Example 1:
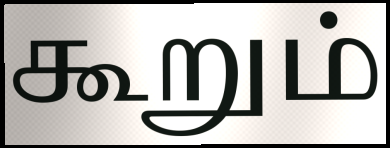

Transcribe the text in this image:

கூறும்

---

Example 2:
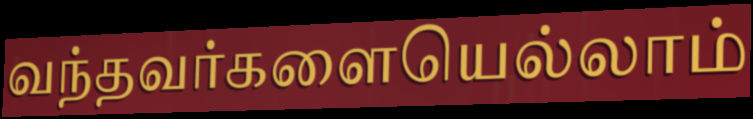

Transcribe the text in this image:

வந்தவர்களையெல்லாம்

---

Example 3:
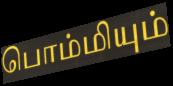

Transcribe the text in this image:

பொம்மியும்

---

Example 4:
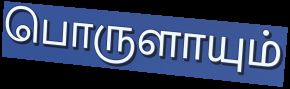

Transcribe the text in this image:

பொருளாயும்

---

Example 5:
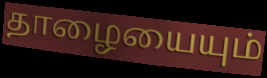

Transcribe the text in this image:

தாழையையும்